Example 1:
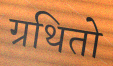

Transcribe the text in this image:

ग्रथितो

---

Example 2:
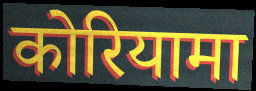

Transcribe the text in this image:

कोरियामा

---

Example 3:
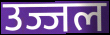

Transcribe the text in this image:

उज्जल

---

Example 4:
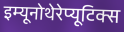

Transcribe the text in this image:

इम्यूनोथेरेप्यूटिक्स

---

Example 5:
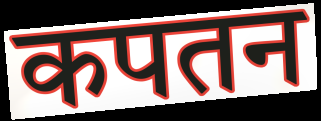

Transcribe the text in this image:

कपतन